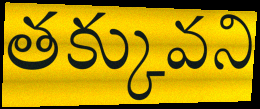
తక్కువని